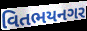
વિતભયનગર